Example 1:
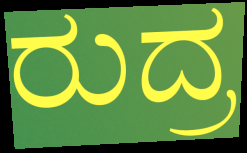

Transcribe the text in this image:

ರುದ್ರ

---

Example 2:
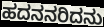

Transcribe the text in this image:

ಹದನನರಿದನು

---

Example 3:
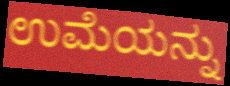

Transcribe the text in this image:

ಉಮೆಯನ್ನು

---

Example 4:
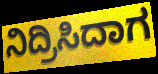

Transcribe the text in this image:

ನಿದ್ರಿಸಿದಾಗ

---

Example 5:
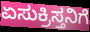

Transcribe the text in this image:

ಏಸುಕ್ರಿಸ್ತನಿಗೆ